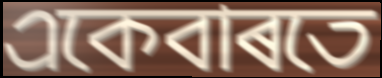
একেবাৰতে